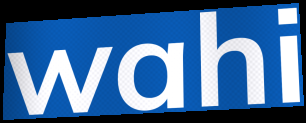
wahi